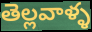
తెల్లవాళ్ళ